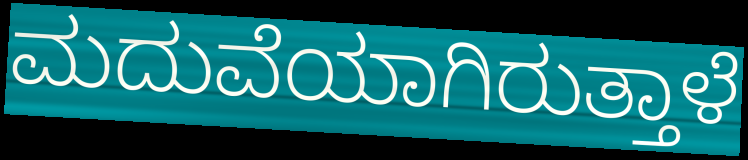
ಮದುವೆಯಾಗಿರುತ್ತಾಳೆ